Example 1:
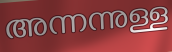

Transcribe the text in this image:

അന്നന്നുള്ള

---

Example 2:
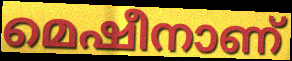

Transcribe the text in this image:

മെഷീനാണ്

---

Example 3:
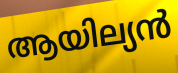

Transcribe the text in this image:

ആയില്യൻ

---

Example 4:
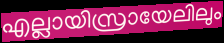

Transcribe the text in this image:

എല്ലായിസ്രായേലിലും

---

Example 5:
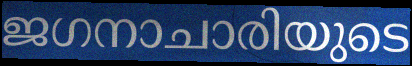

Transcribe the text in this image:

ജഗനാചാരിയുടെ